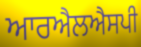
ਆਰਐਲਐਸਪੀ